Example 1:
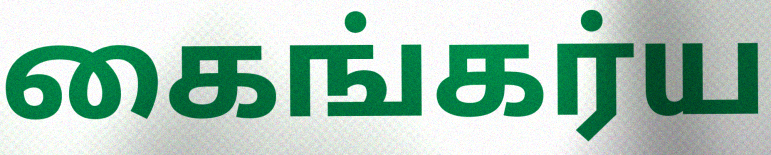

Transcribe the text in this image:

கைங்கர்ய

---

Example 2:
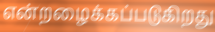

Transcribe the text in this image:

என்றழைக்கப்படுகிறது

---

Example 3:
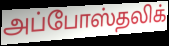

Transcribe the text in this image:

அப்போஸ்தலிக்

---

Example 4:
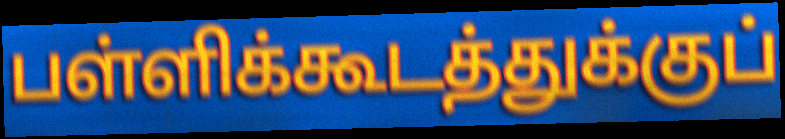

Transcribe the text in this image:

பள்ளிக்கூடத்துக்குப்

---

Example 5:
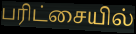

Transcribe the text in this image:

பரிட்சையில்